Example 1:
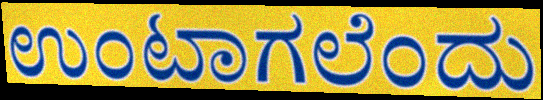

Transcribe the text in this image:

ಉಂಟಾಗಲೆಂದು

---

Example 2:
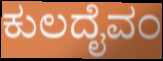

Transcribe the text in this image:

ಕುಲದೈವಂ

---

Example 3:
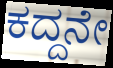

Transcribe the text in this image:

ಕದ್ದನೇ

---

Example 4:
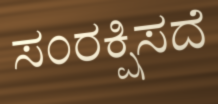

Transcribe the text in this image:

ಸಂರಕ್ಷಿಸದೆ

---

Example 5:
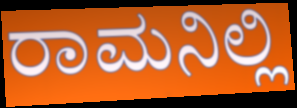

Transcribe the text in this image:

ರಾಮನಿಲ್ಲಿ